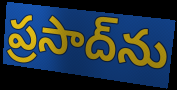
ప్రసాద్‌ను